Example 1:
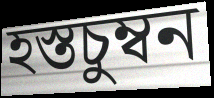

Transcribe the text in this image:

হস্তচুম্বন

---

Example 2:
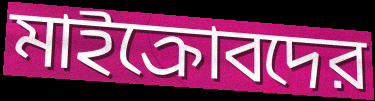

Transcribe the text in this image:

মাইক্রোবদের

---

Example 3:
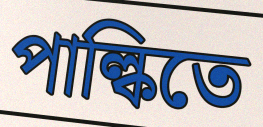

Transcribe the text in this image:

পাল্কিতে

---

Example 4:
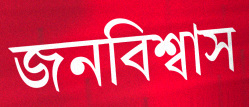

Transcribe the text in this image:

জনবিশ্বাস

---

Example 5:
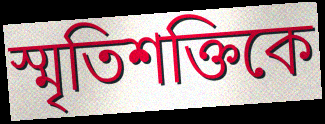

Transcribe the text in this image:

স্মৃতিশক্তিকে